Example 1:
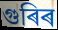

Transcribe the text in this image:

গুৰিৰ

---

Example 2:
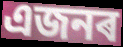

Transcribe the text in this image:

এজনৰ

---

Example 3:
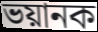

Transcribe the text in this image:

ভয়ানক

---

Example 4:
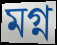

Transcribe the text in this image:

মগ্ন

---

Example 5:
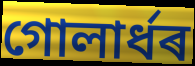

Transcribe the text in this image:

গোলাৰ্ধৰ